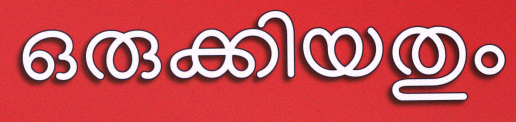
ഒരുക്കിയതും